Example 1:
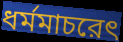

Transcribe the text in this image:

ধর্মমাচরেৎ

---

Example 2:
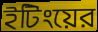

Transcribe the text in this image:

ইটিংয়ের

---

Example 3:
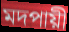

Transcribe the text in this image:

মদপায়ী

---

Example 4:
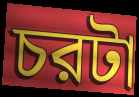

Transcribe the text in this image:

চরটা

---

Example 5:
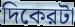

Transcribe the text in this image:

দিকেরটা